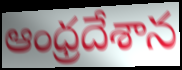
ఆంధ్రదేశాన